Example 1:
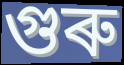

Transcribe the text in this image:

গুৰু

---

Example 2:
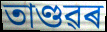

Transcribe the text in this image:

তাণ্ডৱৰ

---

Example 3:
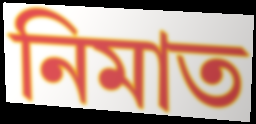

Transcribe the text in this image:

নিমাত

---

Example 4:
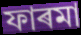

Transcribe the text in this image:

ফাৰমা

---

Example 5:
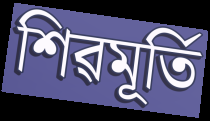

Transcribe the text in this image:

শিৱমূৰ্তি